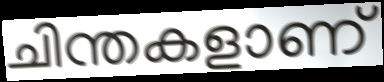
ചിന്തകളാണ്